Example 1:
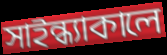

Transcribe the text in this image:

সাইন্ধ্যাকালে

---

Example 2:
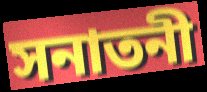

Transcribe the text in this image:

সনাতনী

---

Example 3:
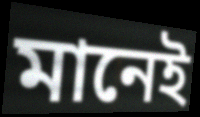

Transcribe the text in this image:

মানেই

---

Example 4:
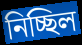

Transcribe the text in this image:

নিচ্ছিল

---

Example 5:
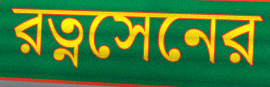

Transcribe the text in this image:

রত্নসেনের